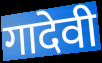
गादेवी